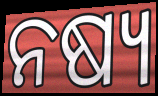
ନଷ୍ଯ